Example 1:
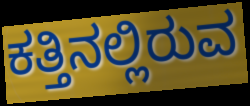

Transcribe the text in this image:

ಕತ್ತಿನಲ್ಲಿರುವ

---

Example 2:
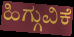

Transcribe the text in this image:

ಹಿಗ್ಗುವಿಕೆ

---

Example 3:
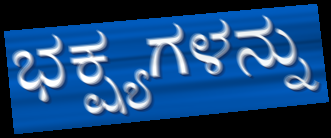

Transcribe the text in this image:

ಭಕ್ಷ್ಯಗಳನ್ನು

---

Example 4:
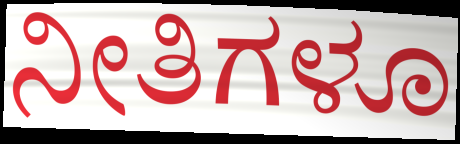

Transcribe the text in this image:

ನೀತಿಗಳೂ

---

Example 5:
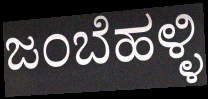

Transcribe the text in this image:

ಜಂಬೆಹಳ್ಳಿ